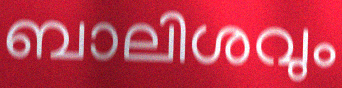
ബാലിശവും